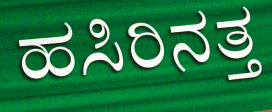
ಹಸಿರಿನತ್ತ